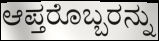
ಆಪ್ತರೊಬ್ಬರನ್ನು